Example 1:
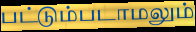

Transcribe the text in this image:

பட்டும்படாமலும்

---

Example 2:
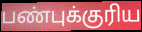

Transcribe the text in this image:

பண்புக்குரிய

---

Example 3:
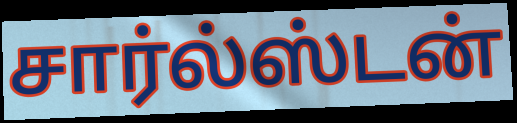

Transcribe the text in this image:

சார்ல்ஸ்டன்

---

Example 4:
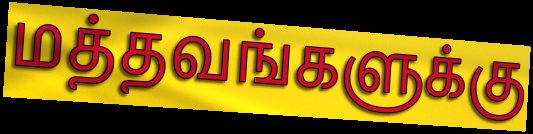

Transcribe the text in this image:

மத்தவங்களுக்கு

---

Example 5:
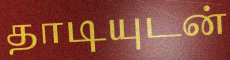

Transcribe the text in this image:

தாடியுடன்